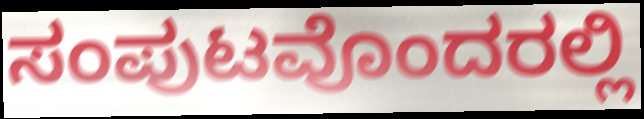
ಸಂಪುಟವೊಂದರಲ್ಲಿ